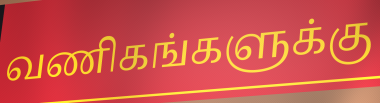
வணிகங்களுக்கு